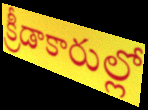
క్రీడాకారుల్లో